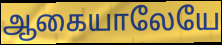
ஆகையாலேயே